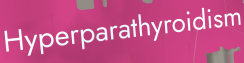
Hyperparathyroidism